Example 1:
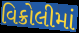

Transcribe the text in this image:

વિક્રોલીમાં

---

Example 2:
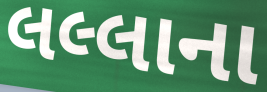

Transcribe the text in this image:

લલ્લાના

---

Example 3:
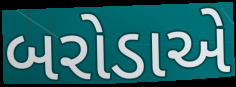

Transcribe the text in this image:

બરોડાએ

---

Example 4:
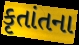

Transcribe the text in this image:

કૃતાંતના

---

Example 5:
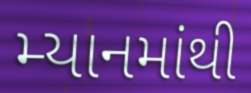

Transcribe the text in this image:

મ્યાનમાંથી